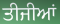
ਤੀਜੀਆਂ